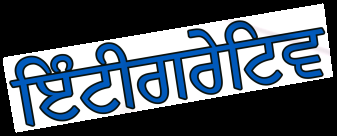
ਇੰਟੀਗਰੇਟਿਵ